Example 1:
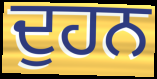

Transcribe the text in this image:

ਦੁਹਨ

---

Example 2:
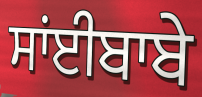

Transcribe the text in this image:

ਸਾਂਈਬਾਬੇ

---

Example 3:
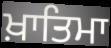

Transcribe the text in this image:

ਖ਼ਾਤਿਮਾ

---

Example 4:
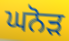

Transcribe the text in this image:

ਘਨੋੜ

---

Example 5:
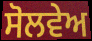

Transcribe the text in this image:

ਸੋਲਵੇਅ